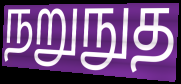
நறுநுத